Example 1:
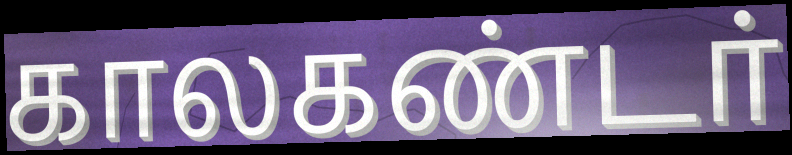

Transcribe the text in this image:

காலகண்டர்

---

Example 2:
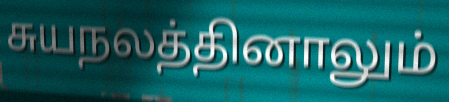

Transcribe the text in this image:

சுயநலத்தினாலும்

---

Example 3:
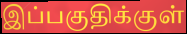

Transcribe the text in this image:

இப்பகுதிக்குள்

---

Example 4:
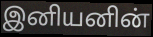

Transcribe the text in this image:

இனியனின்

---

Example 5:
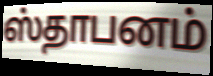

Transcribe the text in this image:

ஸ்தாபனம்